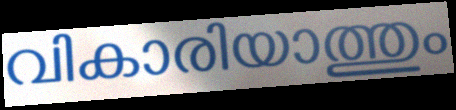
വികാരിയാത്തും